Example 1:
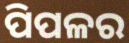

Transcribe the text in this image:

ପିପଳର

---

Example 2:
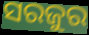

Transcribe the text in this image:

ସରଜୁର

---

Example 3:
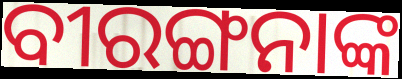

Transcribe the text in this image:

ବୀରଙ୍ଗନାଙ୍କ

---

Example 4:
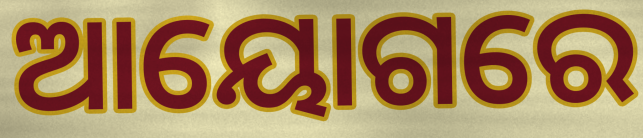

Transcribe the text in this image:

ଆୟୋଗରେ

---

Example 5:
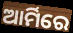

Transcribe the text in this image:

ଆର୍ମିରେ